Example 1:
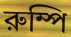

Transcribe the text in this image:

রুম্পি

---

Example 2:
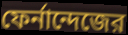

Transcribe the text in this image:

ফের্নান্দেজের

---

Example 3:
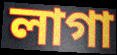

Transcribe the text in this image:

লাগা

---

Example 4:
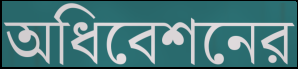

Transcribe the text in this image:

অধিবেশনের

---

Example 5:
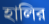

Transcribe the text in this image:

হালির